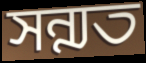
সন্মত